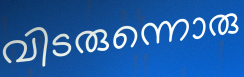
വിടരുന്നൊരു